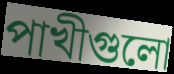
পাখীগুলো